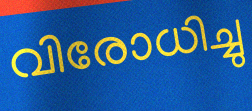
വിരോധിച്ചു